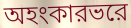
অহংকারভরে